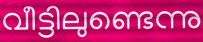
വീട്ടിലുണ്ടെന്നു